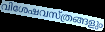
വിശേഷവസ്ത്രങ്ങളും